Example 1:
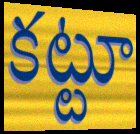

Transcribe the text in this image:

కట్టూ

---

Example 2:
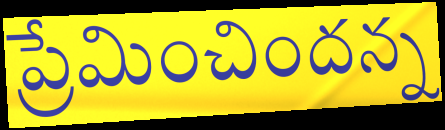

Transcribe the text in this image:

ప్రేమించిందన్న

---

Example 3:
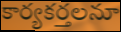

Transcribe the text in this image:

కార్యకర్తలనూ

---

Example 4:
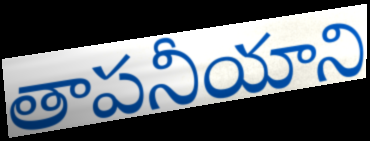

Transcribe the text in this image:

తాపనీయాని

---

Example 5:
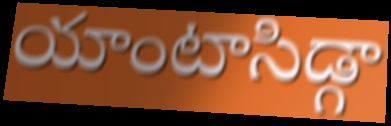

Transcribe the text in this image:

యాంటాసిడ్గా